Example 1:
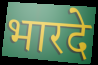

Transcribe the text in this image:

भारदे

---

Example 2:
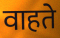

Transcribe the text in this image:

वाहते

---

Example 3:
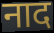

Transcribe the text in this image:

नाद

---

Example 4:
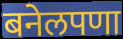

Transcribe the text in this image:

बनेलपणा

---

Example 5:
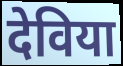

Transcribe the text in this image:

देविया